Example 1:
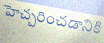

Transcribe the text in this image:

హెచ్చరించడానికి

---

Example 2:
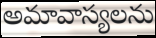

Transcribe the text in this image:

అమావాస్యలను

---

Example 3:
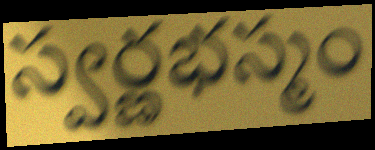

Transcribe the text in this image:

స్వర్ణభస్మం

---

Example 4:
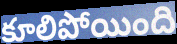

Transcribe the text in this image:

కూలిపోయింది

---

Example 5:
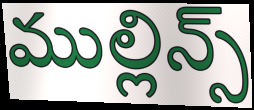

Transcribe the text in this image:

ముల్లిన్స్